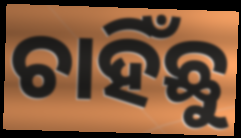
ଚାହିଁଛୁ